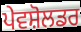
ਪੇਵਸ਼ੋਲਡਰ